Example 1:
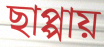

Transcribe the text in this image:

ছাপ্পায়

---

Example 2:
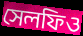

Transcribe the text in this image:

সেলফিও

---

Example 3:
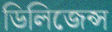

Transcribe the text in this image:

ডিলিজেন্স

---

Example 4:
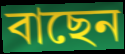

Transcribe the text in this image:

বাছেন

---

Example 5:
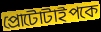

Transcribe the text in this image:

প্রোটোটাইপকে